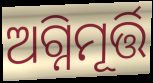
ଅଗ୍ନିମୂର୍ତ୍ତି